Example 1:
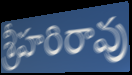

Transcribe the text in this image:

శ్రీహరిరావు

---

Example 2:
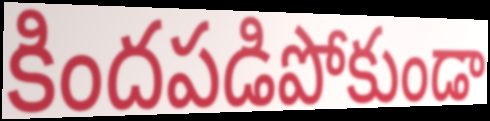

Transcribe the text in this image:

కిందపడిపోకుండా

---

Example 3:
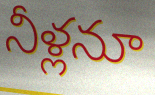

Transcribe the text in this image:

నీళ్లనూ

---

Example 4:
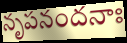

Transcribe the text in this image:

నృపనందనాః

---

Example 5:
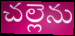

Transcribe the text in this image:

చల్లెను